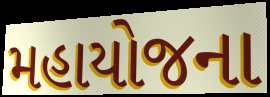
મહાયોજના